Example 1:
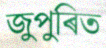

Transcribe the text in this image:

জুপুৰিত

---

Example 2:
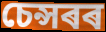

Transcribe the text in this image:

চেন্সৰৰ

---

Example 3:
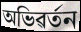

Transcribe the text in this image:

অভিৱৰ্তন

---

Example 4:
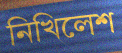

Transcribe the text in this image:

নিখিলেশ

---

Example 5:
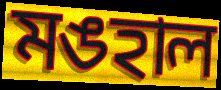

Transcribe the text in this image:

মঙহাল